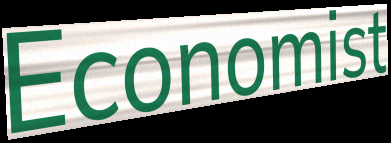
Economist